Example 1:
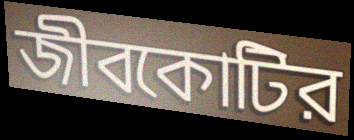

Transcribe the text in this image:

জীবকোটির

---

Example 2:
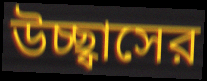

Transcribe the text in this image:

উচ্ছ্বাসের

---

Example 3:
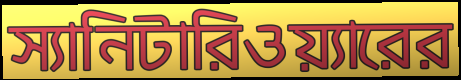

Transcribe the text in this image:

স্যানিটারিওয়্যারের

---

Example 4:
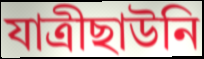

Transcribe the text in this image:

যাত্রীছাউনি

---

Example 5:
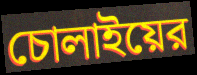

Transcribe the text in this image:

চোলাইয়ের